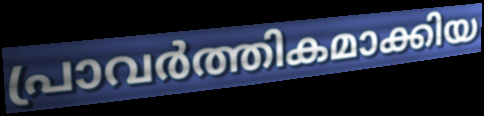
പ്രാവർത്തികമാക്കിയ